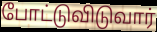
போட்டுவிடுவார்